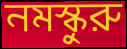
নমস্কুরু